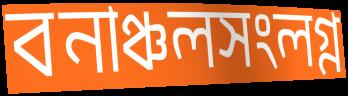
বনাঞ্চলসংলগ্ন